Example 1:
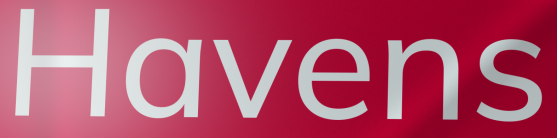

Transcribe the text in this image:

Havens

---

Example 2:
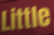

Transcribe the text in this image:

Little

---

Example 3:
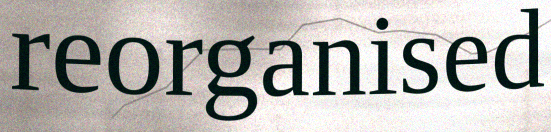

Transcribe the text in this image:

reorganised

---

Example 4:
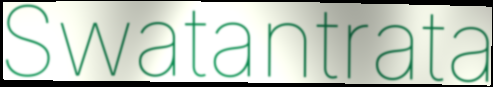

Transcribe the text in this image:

Swatantrata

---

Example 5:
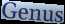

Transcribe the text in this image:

Genus